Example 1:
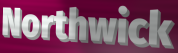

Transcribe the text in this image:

Northwick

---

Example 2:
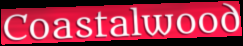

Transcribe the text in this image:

Coastalwood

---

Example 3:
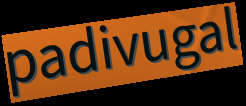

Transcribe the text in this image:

padivugal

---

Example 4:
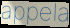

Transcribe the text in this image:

appela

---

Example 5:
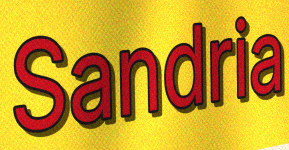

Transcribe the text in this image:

Sandria